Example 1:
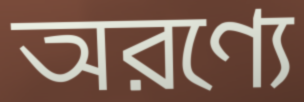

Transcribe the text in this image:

অরণ্যে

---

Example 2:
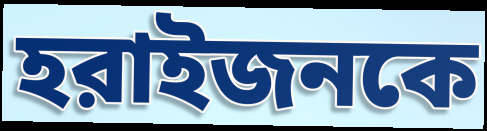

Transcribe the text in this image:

হরাইজনকে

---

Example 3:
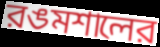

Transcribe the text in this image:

রঙমশালের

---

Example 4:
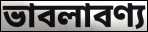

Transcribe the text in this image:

ভাবলাবণ্য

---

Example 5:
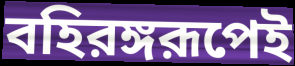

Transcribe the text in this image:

বহিরঙ্গরূপেই